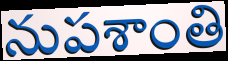
నుపశాంతి